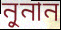
নুনান